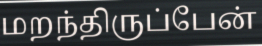
மறந்திருப்பேன்